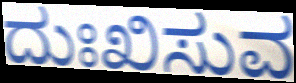
ದುಃಖಿಸುವ